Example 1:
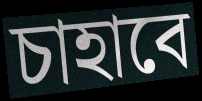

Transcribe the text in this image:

চাহাবে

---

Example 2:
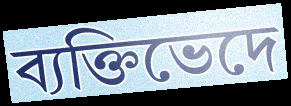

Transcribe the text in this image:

ব্যক্তিভেদে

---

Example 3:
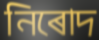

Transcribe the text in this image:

নিৰোদ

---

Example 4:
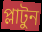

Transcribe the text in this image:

প্লাটুন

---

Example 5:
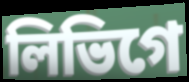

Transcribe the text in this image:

লিভিগে